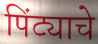
पिंट्याचे